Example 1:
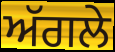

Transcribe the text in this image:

ਅੱਗਲੇ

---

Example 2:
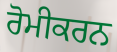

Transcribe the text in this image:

ਰੋਮੀਕਰਨ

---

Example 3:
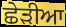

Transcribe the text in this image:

ਛੇੜੀਆ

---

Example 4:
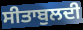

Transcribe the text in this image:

ਸੀਤਾਬੁਲਦੀ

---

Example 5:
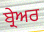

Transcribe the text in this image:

ਬ੍ਰੇਅਰ